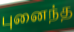
புனைந்த